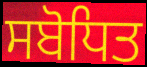
ਸਬੋਧਿਤ